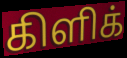
கிளிக்